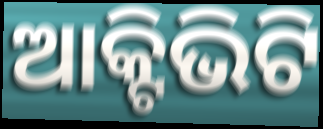
ଆକ୍ଟିଭିଟି